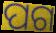
ପଗ